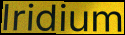
Iridium